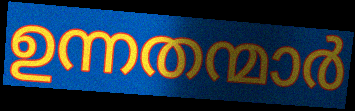
ഉന്നതന്മാർ